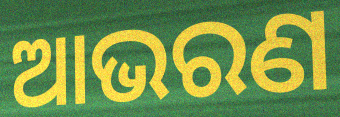
ଆଭରଣ